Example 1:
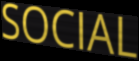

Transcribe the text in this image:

SOCIAL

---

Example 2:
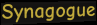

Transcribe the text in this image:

Synagogue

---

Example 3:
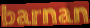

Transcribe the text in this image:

barnan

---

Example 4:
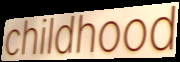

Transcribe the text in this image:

childhood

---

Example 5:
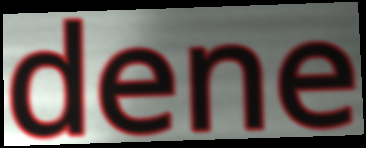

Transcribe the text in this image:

dene